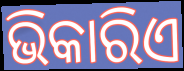
ଭିକାରିଏ